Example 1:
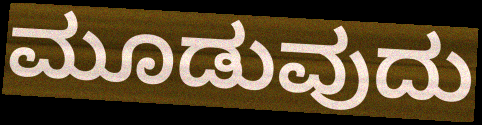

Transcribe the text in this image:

ಮೂಡುವುದು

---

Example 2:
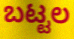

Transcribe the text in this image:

ಬಟ್ಟಲ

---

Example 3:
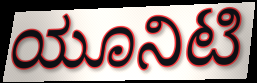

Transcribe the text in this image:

ಯೂನಿಟಿ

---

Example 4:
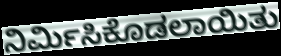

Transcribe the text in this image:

ನಿರ್ಮಿಸಿಕೊಡಲಾಯಿತು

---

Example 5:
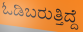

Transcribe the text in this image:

ಓಡಿಬರುತ್ತಿದ್ದೆ